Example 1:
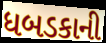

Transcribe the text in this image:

ધબડકાની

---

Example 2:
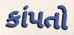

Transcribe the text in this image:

કાંપતો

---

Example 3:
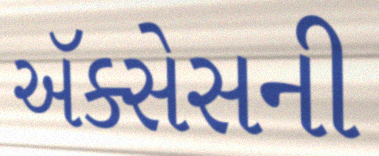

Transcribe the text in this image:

ઍક્સેસની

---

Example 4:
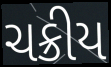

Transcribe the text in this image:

ચક્રીય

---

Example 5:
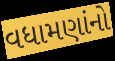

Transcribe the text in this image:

વધામણાંનો